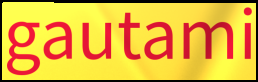
gautami